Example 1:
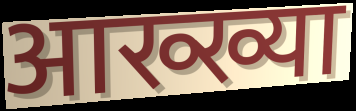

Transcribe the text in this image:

आख्ख्या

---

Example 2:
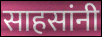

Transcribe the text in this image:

साहसांनी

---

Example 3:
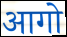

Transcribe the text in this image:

आगो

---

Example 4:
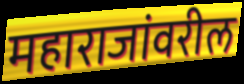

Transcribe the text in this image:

महाराजांवरील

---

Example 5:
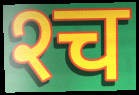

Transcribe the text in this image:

श्च